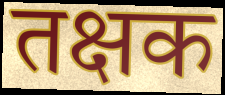
तक्षक